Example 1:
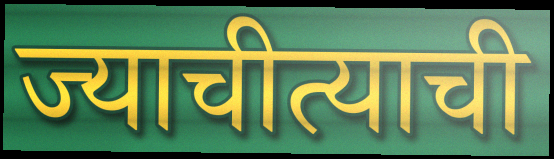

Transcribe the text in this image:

ज्याचीत्याची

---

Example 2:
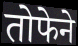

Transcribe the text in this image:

तोफेने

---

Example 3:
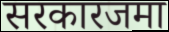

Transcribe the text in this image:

सरकारजमा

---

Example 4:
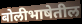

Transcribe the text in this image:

बोलीभाषेतील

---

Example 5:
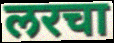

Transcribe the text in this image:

लरचा